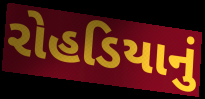
રોહડિયાનું